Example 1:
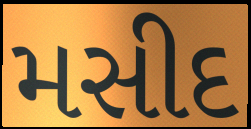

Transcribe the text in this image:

મસીદ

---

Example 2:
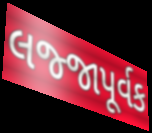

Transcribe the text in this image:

લજ્જાપૂર્વક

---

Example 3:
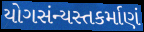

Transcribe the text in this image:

યોગસંન્યસ્તકર્માણં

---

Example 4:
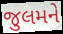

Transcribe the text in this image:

જુલમને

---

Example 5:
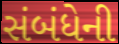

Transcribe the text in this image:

સંબંધેની